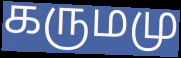
கருமமு